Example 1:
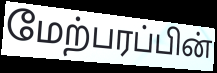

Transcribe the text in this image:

மேற்பரப்பின்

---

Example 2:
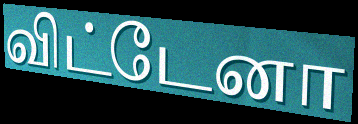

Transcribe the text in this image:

விட்டேனா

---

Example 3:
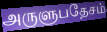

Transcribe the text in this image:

அருளுபதேசம்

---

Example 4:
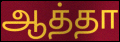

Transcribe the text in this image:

ஆத்தா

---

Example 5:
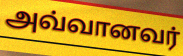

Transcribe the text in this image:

அவ்வானவர்